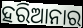
ହରିଆନାର